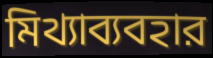
মিথ্যাব্যবহার